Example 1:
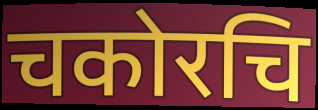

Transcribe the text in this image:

चकोरचि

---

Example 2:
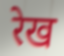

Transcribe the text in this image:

रेख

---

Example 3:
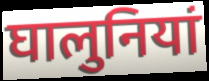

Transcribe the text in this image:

घालुनियां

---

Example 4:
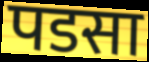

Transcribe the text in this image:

पडसा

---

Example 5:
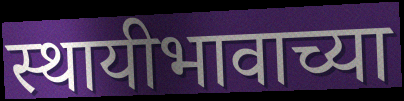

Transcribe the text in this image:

स्थायीभावाच्या